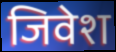
जिवेश